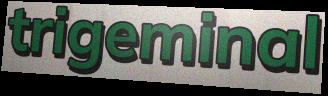
trigeminal